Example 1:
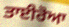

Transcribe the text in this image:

ਤਾਈਰੋਆ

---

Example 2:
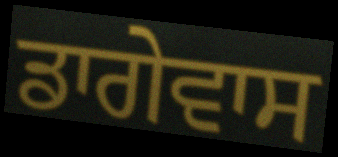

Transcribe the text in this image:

ਡਾਗੇਵਾਸ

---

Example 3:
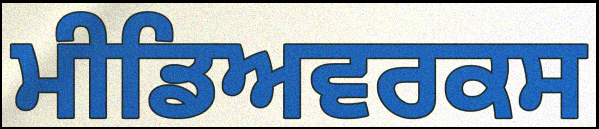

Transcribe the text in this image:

ਮੀਡਿਅਵਰਕਸ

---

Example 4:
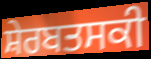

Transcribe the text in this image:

ਸ਼ੇਰਬਤਸਕੀ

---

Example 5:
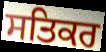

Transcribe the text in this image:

ਸਤਿਕਰ